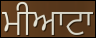
ਮੀਆਟਾ